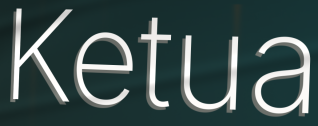
Ketua